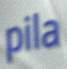
pila